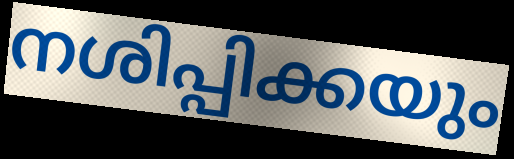
നശിപ്പിക്കയും